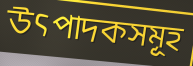
উৎপাদকসমূহ